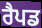
ਰੈਪਡ